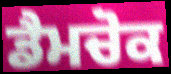
ਡੈਮਚੋਕ